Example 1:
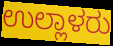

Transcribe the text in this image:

ಉಲ್ಲಾಳರು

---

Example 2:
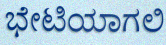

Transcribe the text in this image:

ಭೇಟಿಯಾಗಲಿ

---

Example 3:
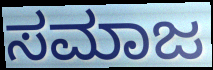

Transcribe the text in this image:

ಸಮಾಜ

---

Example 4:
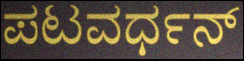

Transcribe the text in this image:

ಪಟವರ್ಧನ್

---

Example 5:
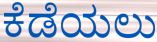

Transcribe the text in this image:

ಕೆಡೆಯಲು